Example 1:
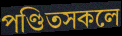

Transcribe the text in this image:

পণ্ডিতসকলে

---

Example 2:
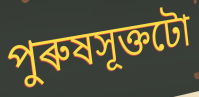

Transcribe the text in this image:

পুৰুষসূক্তটো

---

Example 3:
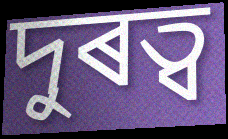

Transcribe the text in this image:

দুৰত্ব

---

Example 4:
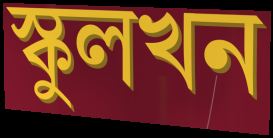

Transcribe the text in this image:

স্কুলখন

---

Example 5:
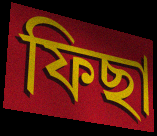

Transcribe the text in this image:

ফিছা